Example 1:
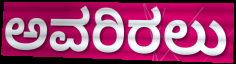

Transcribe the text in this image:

ಅವರಿರಲು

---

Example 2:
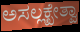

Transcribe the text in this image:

ಅಸಲ್ಲಕ್ಖೇತ್ವಾ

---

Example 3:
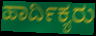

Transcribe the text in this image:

ಹಾರ್ದಿಕ್ಯರು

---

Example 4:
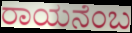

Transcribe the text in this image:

ರಾಯನೆಂಬ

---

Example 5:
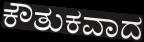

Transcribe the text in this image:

ಕೌತುಕವಾದ